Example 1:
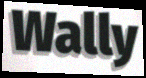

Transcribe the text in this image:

Wally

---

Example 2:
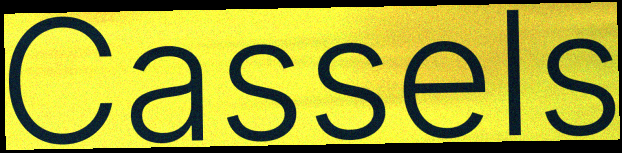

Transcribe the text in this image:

Cassels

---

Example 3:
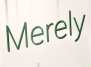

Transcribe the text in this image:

Merely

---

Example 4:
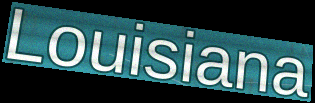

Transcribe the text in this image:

Louisiana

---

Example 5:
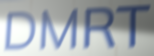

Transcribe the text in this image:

DMRT